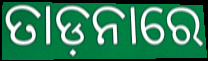
ତାଡ଼ନାରେ